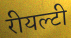
रीयल्टी